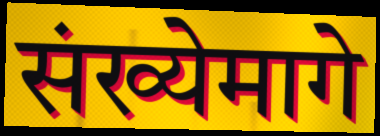
संख्येमागे